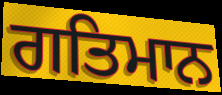
ਗਤਿਮਾਨ